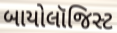
બાયોલૉજિસ્ટ